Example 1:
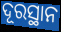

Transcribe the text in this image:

ଦୂରସ୍ଥାନ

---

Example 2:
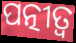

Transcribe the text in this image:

ପତ୍ନୀତ୍ୱ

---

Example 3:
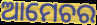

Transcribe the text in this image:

ଆମେଚର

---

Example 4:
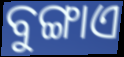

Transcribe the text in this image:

ବୁଙ୍ଗାଏ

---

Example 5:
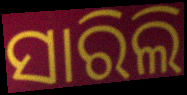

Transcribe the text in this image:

ସାରିଲି